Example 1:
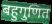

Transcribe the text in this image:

बहुगुणित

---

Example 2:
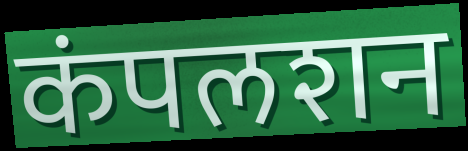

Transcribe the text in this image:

कंपलशन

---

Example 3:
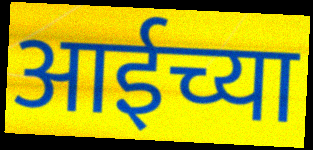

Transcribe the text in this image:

आईच्या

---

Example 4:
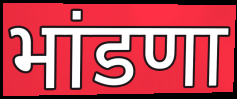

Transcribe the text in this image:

भांडणा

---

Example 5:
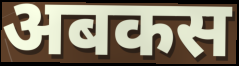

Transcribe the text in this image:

अबकस